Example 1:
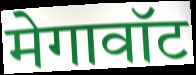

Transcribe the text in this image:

मेगावॉट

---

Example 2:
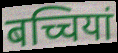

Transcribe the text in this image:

बच्चियां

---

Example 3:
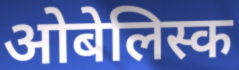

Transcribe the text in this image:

ओबेलिस्क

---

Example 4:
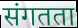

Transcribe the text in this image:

संगतता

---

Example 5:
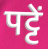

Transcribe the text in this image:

पट्टें